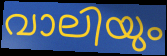
വാലിയും